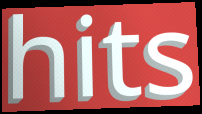
hits